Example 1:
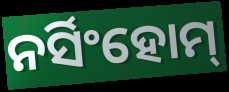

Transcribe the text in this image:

ନର୍ସିଂହୋମ୍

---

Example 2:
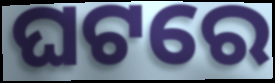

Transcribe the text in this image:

ଘଟରେ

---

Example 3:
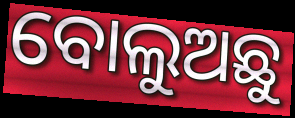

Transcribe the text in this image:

ବୋଲୁଅଛୁ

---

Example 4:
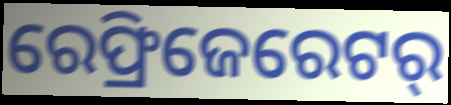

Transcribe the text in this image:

ରେଫ୍ରିଜେରେଟର୍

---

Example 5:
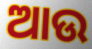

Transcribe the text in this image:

ଆଉ